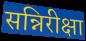
सन्निरीक्षा